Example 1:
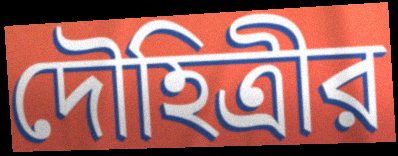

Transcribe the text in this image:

দৌহিত্রীর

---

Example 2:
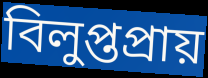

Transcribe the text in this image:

বিলুপ্তপ্রায়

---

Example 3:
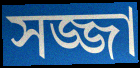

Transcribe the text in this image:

সজ্জা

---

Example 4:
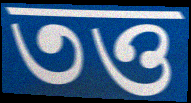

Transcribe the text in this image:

তত্ত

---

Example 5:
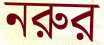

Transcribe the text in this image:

নরুর